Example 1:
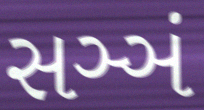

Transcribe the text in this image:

સઞ્ઞં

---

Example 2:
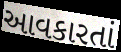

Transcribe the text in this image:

આવકારતાં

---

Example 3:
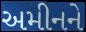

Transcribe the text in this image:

અમીનને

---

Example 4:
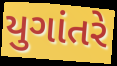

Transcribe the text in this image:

યુગાંતરે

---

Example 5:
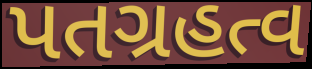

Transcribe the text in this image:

પતગ્રહત્વ